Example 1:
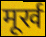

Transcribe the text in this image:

मूर्ख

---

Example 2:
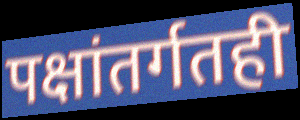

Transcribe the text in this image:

पक्षांतर्गतही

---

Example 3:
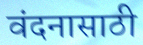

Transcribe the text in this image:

वंदनासाठी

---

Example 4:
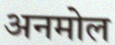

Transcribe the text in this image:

अनमोल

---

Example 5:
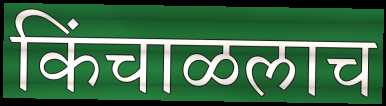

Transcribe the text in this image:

किंचाळलाच